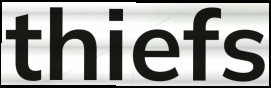
thiefs